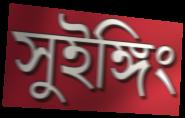
সুইঙ্গিং